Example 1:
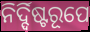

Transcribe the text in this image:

ନିର୍ଦ୍ଦିଷ୍ଟରୂପେ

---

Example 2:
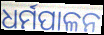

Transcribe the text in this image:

ଧର୍ମପାଳନ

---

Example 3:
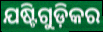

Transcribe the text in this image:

ଯଷ୍ଟିଗୁଡ଼ିକର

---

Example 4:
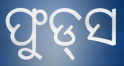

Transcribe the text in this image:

ଫୁଡ୍‌ସ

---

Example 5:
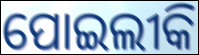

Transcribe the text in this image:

ପୋଇଲୀକି